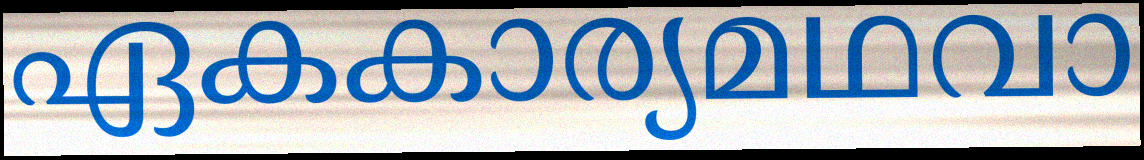
ഏകകാര്യമഥവാ